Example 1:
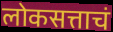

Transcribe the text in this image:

लोकसत्ताचं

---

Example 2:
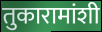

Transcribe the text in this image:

तुकारामांशी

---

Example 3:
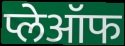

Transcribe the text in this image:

प्लेऑफ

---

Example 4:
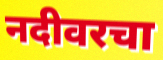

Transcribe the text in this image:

नदीवरचा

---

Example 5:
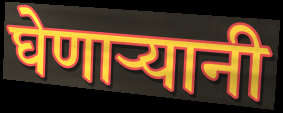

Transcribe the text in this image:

घेणाऱ्यानी